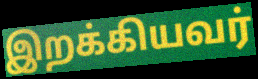
இறக்கியவர்